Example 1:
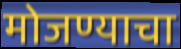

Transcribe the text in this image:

मोजण्याचा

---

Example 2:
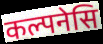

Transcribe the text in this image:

कल्पनेसि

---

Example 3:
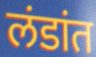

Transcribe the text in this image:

लंडांत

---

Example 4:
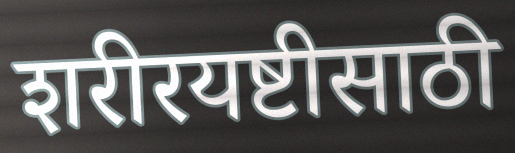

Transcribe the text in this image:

शरीरयष्टीसाठी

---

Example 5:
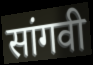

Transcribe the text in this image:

सांगवी